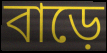
বাড়ে